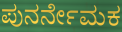
ಪುನರ್ನೇಮಕ